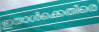
ഇയാൾക്കെതിരെ